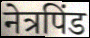
नेत्रपिंड